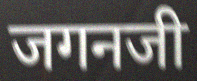
जगनजी